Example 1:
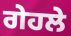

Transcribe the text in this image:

ਗੇਹਲੇ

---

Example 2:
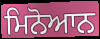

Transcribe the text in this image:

ਮਿਨੋਆਨ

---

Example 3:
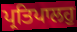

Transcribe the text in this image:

ਪ੍ਰਤਿਪਾਲਹੁ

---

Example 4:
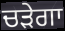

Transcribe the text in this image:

ਚੜੇਗਾ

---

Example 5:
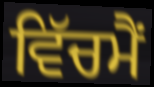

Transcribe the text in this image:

ਵਿੱਚਮੈਂ